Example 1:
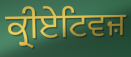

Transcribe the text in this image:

ਕ੍ਰੀਏਟਿਵਜ਼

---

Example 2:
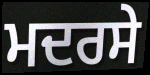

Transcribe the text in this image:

ਮਦਰਸੇ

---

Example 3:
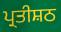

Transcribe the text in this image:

ਪ੍ਰਤੀਸ਼ਠ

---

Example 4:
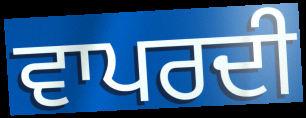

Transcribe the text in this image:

ਵਾਪਰਦੀ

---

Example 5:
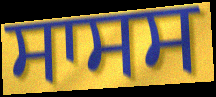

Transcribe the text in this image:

ਸਾਸਸ